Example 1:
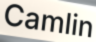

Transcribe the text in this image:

Camlin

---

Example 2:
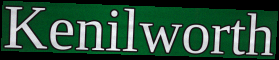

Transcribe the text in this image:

Kenilworth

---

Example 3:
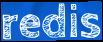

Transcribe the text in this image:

redis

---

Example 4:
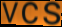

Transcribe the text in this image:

vcs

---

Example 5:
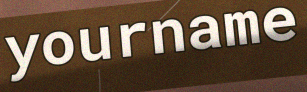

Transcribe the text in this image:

yourname